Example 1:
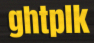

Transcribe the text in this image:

ghtplk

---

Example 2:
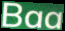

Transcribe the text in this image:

Baa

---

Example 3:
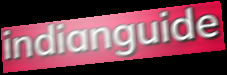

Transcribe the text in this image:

indianguide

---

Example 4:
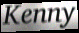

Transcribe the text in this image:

Kenny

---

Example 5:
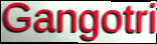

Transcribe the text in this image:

Gangotri